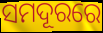
ସମଦୂରରେ